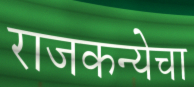
राजकन्येचा